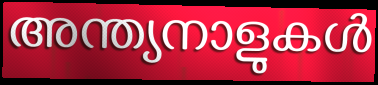
അന്ത്യനാളുകൾ